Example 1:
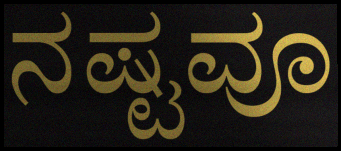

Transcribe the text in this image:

ನಷ್ಟವೂ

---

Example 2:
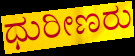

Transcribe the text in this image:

ಧುರೀಣರು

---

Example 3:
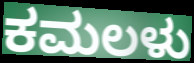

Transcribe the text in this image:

ಕಮಲಳು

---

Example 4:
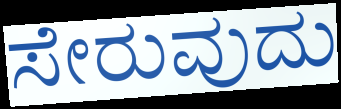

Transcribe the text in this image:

ಸೇರುವುದು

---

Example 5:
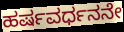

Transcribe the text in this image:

ಹರ್ಷವರ್ಧನನೇ